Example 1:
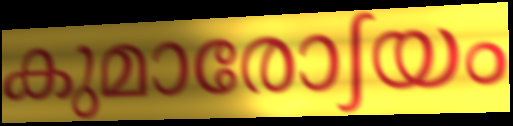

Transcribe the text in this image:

കുമാരോഽയം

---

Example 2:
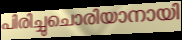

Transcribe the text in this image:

പിരിച്ചുചൊരിയാനായി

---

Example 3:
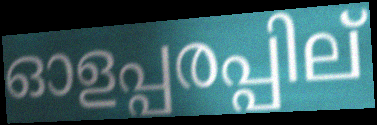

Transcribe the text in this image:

ഓളപ്പരപ്പില്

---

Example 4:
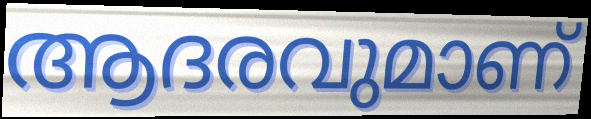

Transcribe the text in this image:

ആദരവുമാണ്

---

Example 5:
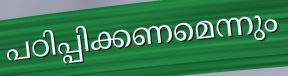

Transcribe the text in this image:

പഠിപ്പിക്കണമെന്നും